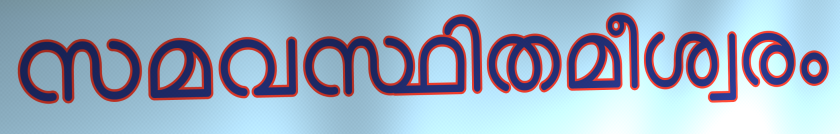
സമവസ്ഥിതമീശ്വരം